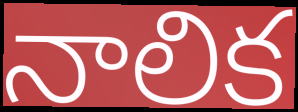
నాలిక